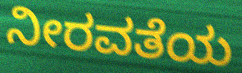
ನೀರವತೆಯ